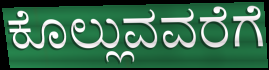
ಕೊಲ್ಲುವವರೆಗೆ